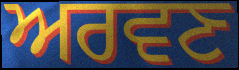
ਅਰਵਣ